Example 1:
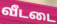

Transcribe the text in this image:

வீடடை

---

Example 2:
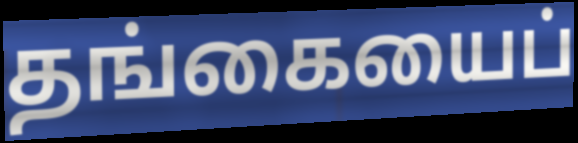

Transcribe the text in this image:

தங்கையைப்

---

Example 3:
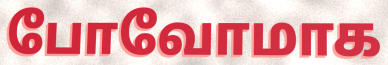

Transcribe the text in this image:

போவோமாக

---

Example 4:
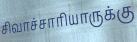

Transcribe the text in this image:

சிவாச்சாரியாருக்கு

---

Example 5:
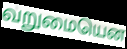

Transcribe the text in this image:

வறுமையென